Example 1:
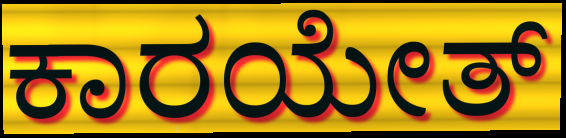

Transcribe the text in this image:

ಕಾರಯೇತ್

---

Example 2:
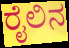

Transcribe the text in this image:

ರೈಲಿನ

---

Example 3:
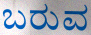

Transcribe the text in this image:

ಬರುವ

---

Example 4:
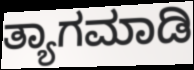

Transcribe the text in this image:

ತ್ಯಾಗಮಾಡಿ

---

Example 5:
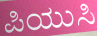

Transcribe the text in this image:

ಪಿಯುಸಿ